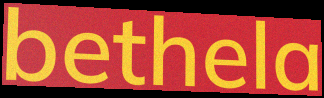
bethela